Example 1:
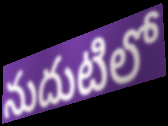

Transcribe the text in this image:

నుదుటిలో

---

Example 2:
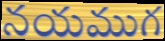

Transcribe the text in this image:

నయముగ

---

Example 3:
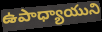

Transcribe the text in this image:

ఉపాధ్యాయుని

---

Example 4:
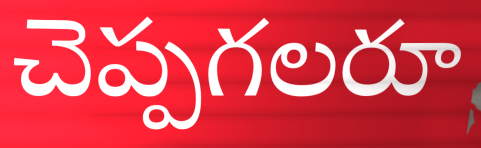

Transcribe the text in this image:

చెప్పగలరూ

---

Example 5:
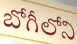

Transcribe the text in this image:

బోగీలోని